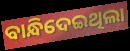
ବାନ୍ଧିଦେଇଥିଲା